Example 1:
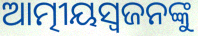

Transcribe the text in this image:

ଆତ୍ମୀୟସ୍ୱଜନଙ୍କୁ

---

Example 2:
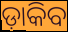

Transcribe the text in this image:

ଡ଼ାକିବ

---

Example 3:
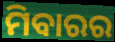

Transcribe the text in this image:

ମିବାରର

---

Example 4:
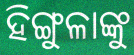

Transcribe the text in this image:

ହିଙ୍ଗୁଳାଙ୍କୁ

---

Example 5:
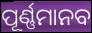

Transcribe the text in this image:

ପୂର୍ଣ୍ଣମାନବ